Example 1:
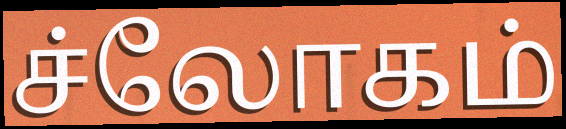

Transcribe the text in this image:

ச்லோகம்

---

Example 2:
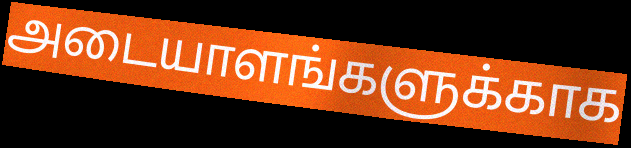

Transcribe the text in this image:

அடையாளங்களுக்காக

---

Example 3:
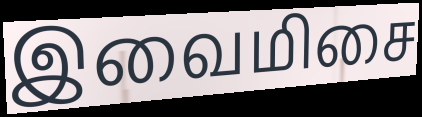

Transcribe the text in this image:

இவைமிசை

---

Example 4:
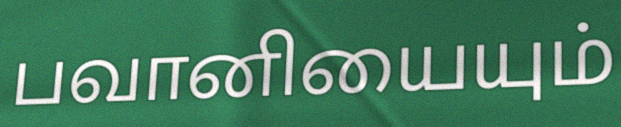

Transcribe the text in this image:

பவானியையும்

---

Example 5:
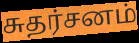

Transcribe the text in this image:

சுதர்சனம்